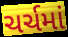
ચર્ચમાં